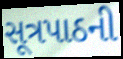
સૂત્રપાઠની